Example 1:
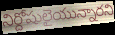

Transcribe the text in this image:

నిర్దోషులైయున్నారని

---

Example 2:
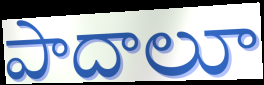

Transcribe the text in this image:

పాదాలూ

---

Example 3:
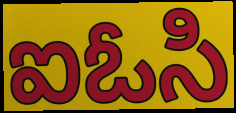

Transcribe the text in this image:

ఐఓసి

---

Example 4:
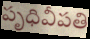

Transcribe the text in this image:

పృధివీపతి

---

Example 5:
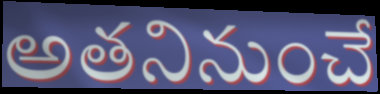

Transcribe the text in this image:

అతనినుంచే